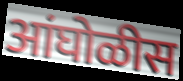
आंघोळीस